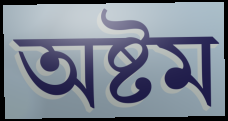
অষ্টম